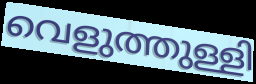
വെളുത്തുള്ളി